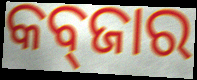
କବ୍‌ଜାର